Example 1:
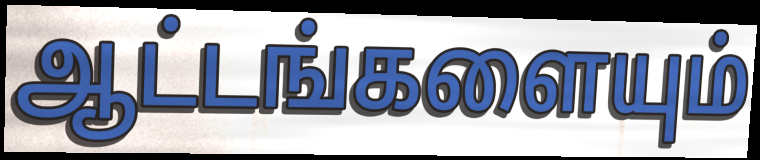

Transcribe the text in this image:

ஆட்டங்களையும்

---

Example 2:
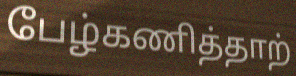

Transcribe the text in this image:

பேழ்கணித்தாற்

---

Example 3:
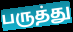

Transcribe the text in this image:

பருத்து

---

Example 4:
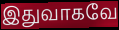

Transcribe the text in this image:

இதுவாகவே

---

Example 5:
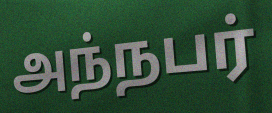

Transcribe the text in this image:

அந்நபர்